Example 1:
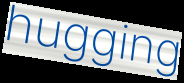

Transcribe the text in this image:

hugging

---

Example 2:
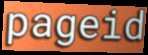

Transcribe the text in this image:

pageid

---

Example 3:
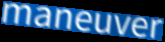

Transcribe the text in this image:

maneuver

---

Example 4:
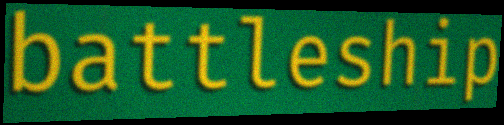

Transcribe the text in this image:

battleship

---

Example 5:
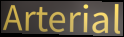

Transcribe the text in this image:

Arterial